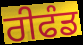
ਰੀਫੰਡ